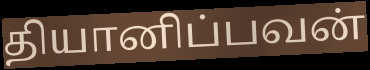
தியானிப்பவன்